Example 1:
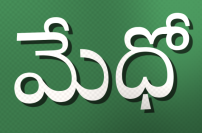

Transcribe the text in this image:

మేధో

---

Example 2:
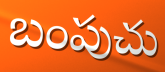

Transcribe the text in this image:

బంపుచు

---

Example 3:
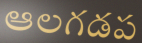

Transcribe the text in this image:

ఆలగడప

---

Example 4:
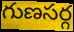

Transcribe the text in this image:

గుణసర్గ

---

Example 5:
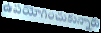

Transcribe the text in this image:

ఉపయోగించుకున్నారు